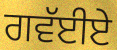
ਗਵੱਈਏ